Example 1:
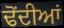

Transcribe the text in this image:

ਢੋਂਦੀਆਂ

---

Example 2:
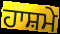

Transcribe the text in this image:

ਹਾਸ਼ਮੇ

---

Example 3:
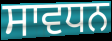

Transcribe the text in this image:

ਸਾਵਧਨ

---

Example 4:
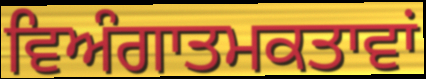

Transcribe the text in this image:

ਵਿਅੰਗਾਤਮਕਤਾਵਾਂ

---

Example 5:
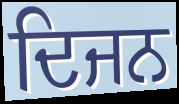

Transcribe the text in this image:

ਦਿਜਨ